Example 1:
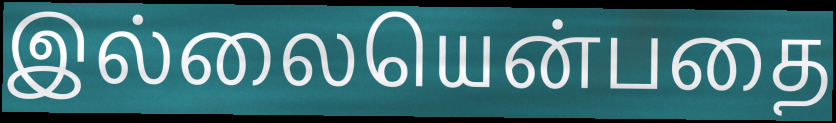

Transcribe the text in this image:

இல்லையென்பதை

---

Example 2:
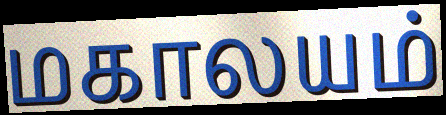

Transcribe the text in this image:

மகாலயம்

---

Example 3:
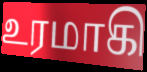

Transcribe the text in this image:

உரமாகி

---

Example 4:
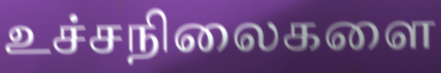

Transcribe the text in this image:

உச்சநிலைகளை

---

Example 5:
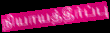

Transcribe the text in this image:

நியாயத்தீர்ப்பு